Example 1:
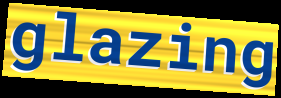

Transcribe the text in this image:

glazing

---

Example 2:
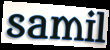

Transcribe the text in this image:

samil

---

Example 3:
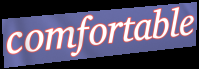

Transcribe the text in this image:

comfortable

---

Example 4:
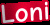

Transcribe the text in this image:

Loni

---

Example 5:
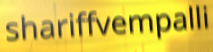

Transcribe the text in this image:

shariffvempalli